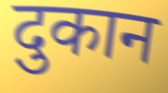
दुकान